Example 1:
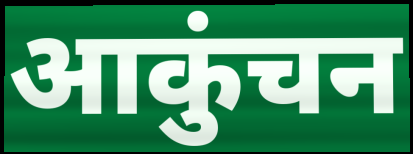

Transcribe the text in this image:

आकुंचन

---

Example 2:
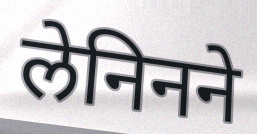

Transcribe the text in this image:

लेनिनने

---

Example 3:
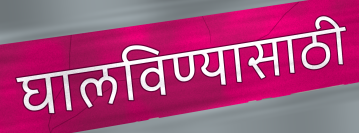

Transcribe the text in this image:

घालविण्यासाठी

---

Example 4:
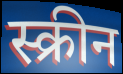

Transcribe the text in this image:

स्क्रीन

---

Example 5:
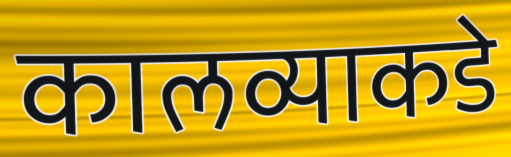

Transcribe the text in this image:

कालव्याकडे